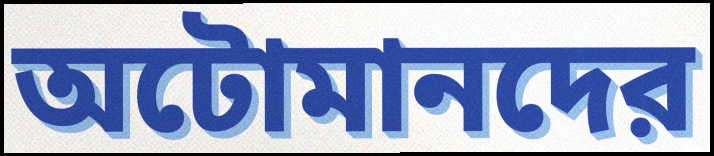
অটোমানদের